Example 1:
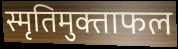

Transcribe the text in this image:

स्मृतिमुक्ताफल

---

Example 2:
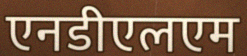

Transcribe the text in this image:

एनडीएलएम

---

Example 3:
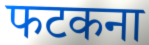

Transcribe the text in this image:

फटकना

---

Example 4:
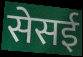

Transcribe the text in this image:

सेसई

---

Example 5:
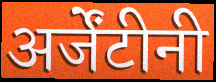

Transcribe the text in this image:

अर्जेंटीनी